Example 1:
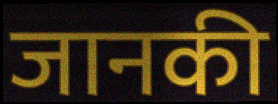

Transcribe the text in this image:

जानकी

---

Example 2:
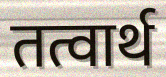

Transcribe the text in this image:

तत्वार्थ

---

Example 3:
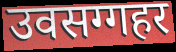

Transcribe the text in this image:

उवसग्गहर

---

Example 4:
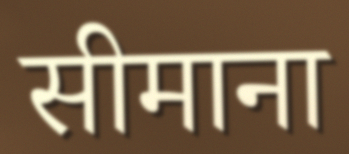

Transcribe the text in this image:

सीमाना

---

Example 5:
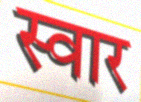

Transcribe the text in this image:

स्वार